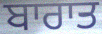
ਬਾਰਾਤ